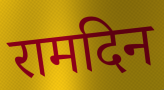
रामदिन